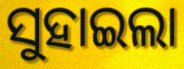
ସୁହାଇଲା